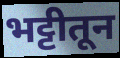
भट्टीतून